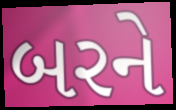
બરને